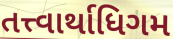
તત્ત્વાર્થાધિગમ